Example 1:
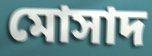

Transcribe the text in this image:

মোসাদ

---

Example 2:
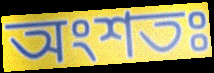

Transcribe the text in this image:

অংশতঃ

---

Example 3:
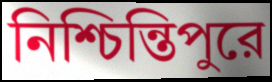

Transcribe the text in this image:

নিশ্চিন্তিপুরে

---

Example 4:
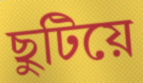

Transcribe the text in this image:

ছুটিয়ে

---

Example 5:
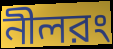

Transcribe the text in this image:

নীলরং